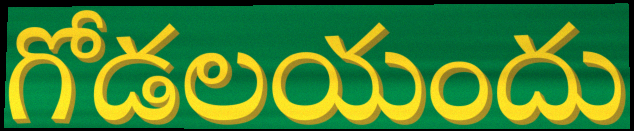
గోడలయందు